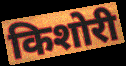
किशोरी